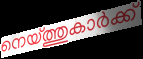
നെയ്ത്തുകാർക്ക്